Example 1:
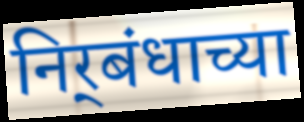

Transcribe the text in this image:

निर्बंधाच्या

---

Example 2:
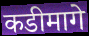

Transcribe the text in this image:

कडीमागे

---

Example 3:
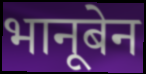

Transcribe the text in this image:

भानूबेन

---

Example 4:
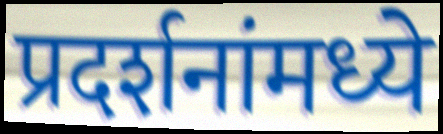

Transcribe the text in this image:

प्रदर्शनांमध्ये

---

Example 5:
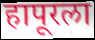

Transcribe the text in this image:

हापूरला